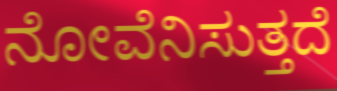
ನೋವೆನಿಸುತ್ತದೆ